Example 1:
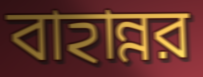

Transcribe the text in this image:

বাহান্নর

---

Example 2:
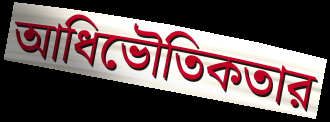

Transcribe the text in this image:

আধিভৌতিকতার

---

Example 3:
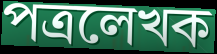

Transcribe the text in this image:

পত্রলেখক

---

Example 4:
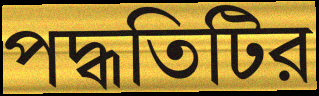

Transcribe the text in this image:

পদ্ধতিটির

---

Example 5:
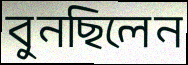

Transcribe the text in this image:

বুনছিলেন